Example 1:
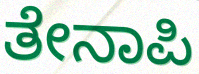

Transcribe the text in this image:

ತೇನಾಪಿ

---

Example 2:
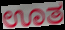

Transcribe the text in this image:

ಊತ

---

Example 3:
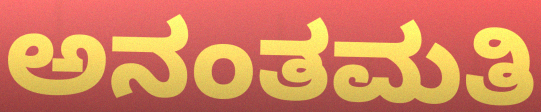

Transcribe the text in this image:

ಅನಂತಮತಿ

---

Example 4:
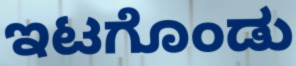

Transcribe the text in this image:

ಇಟಗೊಂಡು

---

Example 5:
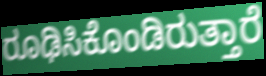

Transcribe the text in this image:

ರೂಢಿಸಿಕೊಂಡಿರುತ್ತಾರೆ